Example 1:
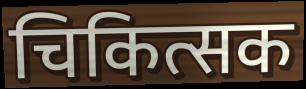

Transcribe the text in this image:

चिकित्सक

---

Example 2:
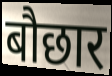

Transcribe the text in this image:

बौछार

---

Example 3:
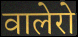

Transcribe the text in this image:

वालेरो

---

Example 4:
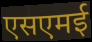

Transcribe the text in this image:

एसएमई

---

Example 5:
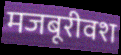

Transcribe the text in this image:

मजबूरीवश